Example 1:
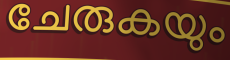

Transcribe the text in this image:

ചേരുകയും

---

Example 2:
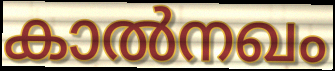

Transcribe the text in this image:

കാൽനഖം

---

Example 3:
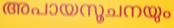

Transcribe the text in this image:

അപായസൂചനയും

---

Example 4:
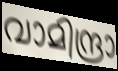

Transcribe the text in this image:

വാമിന്ദ്രാ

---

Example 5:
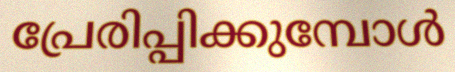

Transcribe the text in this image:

പ്രേരിപ്പിക്കുമ്പോൾ